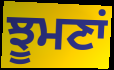
ਝੂਮਣਾਂ